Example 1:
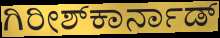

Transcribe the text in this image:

ಗಿರೀಶ್‌ಕಾರ್ನಾಡ್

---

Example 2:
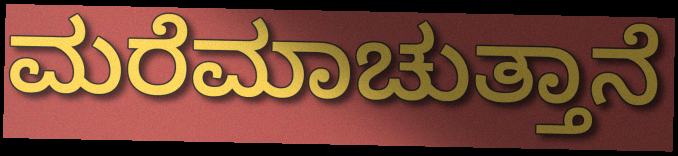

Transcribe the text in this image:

ಮರೆಮಾಚುತ್ತಾನೆ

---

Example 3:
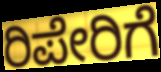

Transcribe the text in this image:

ರಿಪೇರಿಗೆ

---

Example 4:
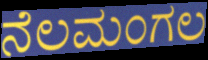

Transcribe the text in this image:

ನೆಲಮಂಗಲ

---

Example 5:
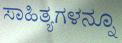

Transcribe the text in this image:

ಸಾಹಿತ್ಯಗಳನ್ನೂ